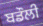
ਬਡੌਲੀ